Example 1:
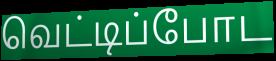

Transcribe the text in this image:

வெட்டிப்போட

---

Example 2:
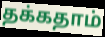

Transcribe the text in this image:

தக்கதாம்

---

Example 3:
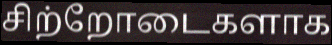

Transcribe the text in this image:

சிற்றோடைகளாக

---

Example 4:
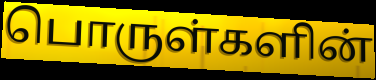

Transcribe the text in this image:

பொருள்களின்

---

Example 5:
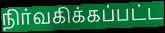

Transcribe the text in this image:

நிர்வகிக்கப்பட்ட